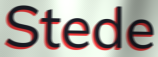
Stede